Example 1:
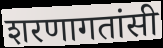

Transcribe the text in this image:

शरणागतांसी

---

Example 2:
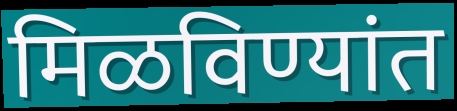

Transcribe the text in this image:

मिळविण्यांत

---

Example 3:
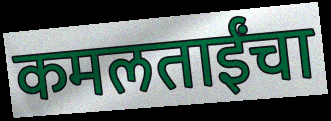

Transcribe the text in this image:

कमलताईंचा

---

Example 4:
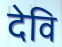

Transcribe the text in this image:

देवि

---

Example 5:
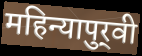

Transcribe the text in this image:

महिन्यापुर्वी